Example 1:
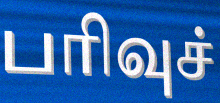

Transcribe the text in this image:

பரிவுச்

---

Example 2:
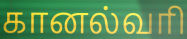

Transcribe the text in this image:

கானல்வரி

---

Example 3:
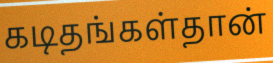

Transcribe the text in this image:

கடிதங்கள்தான்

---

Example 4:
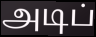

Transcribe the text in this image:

அடிப்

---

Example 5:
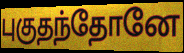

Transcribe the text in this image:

புகுதந்தோனே